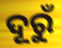
ଦୂରୁଁ